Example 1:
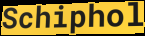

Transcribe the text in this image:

Schiphol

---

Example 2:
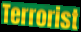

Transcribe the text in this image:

Terrorist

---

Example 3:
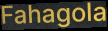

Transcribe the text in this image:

Fahagola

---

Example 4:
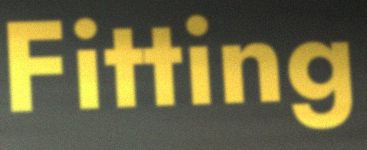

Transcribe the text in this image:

Fitting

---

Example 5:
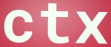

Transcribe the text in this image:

ctx